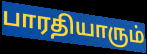
பாரதியாரும்